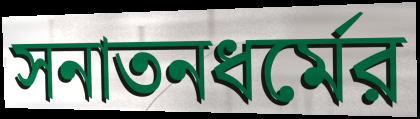
সনাতনধর্মের